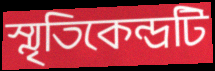
স্মৃতিকেন্দ্রটি